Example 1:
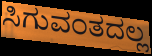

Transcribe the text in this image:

ಸಿಗುವಂತದಲ್ಲ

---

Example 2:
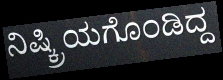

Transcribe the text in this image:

ನಿಷ್ಕ್ರಿಯಗೊಂಡಿದ್ದ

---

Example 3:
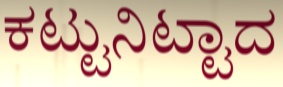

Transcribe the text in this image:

ಕಟ್ಟುನಿಟ್ಟಾದ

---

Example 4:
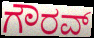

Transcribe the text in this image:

ಗೌರವ್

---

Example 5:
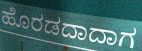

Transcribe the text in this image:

ಹೊರಡದಾದಾಗ